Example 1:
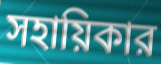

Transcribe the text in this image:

সহায়িকার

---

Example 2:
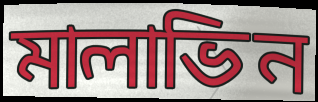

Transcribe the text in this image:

মালাভিন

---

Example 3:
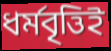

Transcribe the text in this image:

ধর্মবৃত্তিই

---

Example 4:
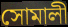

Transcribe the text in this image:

সোমালী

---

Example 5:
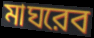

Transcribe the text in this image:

মাঘরেব